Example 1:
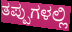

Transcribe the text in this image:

ತಪ್ಪುಗಳಲ್ಲಿ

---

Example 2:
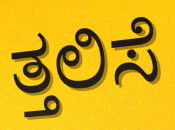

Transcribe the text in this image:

ತ್ತಲಿಸೆ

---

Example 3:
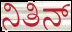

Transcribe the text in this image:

ನಿತಿನ್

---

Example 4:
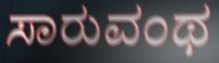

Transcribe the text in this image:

ಸಾರುವಂಥ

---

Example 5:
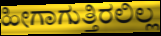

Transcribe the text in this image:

ಹೀಗಾಗುತ್ತಿರಲಿಲ್ಲ